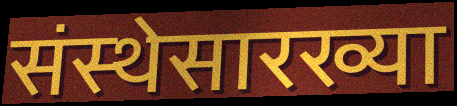
संस्थेसारख्या